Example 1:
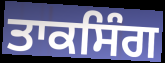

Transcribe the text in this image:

ਤਾਕਸਿੰਗ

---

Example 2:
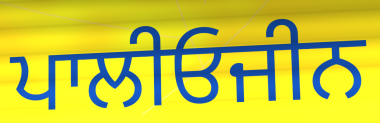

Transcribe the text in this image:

ਪਾਲੀਓਜੀਨ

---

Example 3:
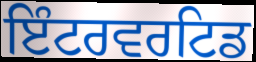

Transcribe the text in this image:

ਇੰਟਰਵਰਟਿਡ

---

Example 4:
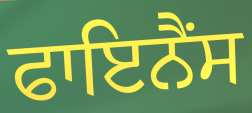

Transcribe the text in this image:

ਫਾਇਨੈਂਸ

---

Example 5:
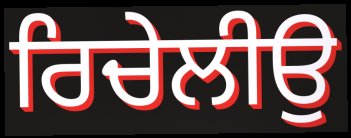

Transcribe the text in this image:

ਰਿਚੇਲੀਉ